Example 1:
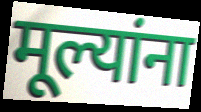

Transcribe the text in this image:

मूल्यांना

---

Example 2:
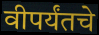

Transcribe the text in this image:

वीपर्यंतचे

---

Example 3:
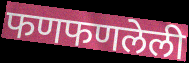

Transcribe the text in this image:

फणफणलेली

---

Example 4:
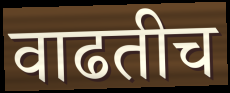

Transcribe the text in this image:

वाढतीच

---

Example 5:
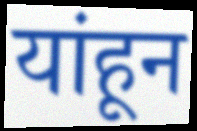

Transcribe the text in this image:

यांहून